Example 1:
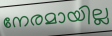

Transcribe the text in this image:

നേരമായില്ല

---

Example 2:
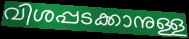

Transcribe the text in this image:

വിശപ്പടക്കാനുള്ള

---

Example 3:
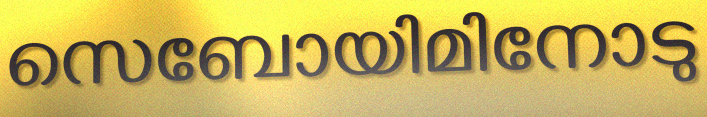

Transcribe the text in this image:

സെബോയിമിനോടു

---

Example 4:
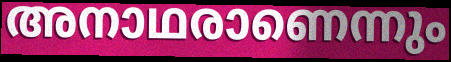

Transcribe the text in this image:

അനാഥരാണെന്നും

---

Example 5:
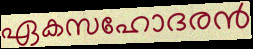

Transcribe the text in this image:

ഏകസഹോദരൻ